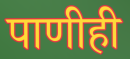
पाणीही